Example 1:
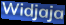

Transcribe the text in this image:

Widjaja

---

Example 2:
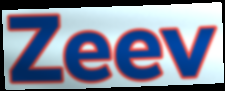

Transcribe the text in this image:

Zeev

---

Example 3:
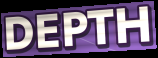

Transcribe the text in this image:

DEPTH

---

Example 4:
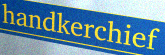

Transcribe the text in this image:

handkerchief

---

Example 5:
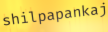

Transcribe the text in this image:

shilpapankaj